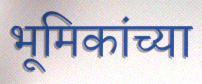
भूमिकांच्या